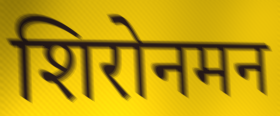
शिरोनमन